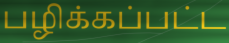
பழிக்கப்பட்ட